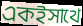
একইসাথে